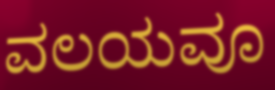
ವಲಯವೂ